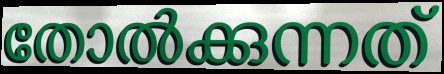
തോൽക്കുന്നത്